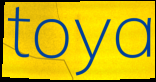
toya